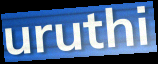
uruthi